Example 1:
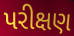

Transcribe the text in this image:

પરીક્ષણ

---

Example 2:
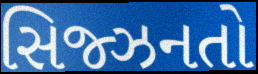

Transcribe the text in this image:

સિજ્ઝનતો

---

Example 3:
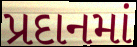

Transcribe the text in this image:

પ્રદાનમાં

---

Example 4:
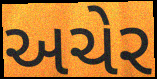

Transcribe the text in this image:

અચેર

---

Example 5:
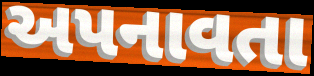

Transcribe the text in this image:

અપનાવતા